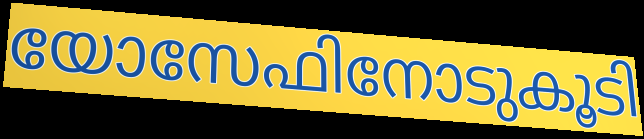
യോസേഫിനോടുകൂടി